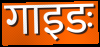
गाइडः